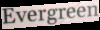
Evergreen